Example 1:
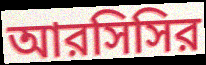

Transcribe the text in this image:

আরসিসির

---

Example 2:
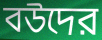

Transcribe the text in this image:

বউদের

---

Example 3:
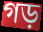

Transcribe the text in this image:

গড়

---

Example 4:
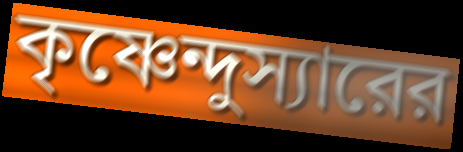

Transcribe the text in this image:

কৃষ্ণেন্দুস্যারের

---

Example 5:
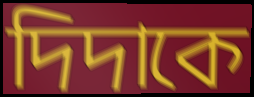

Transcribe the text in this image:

দিদাকে